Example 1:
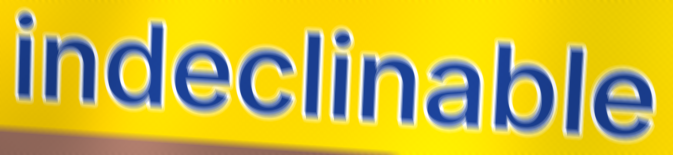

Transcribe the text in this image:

indeclinable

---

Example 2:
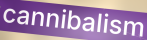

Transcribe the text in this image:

cannibalism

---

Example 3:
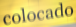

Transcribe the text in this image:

colocado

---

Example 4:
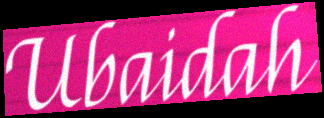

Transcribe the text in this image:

Ubaidah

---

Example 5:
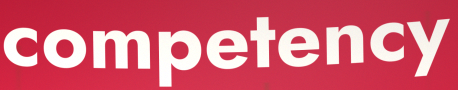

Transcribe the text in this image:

competency